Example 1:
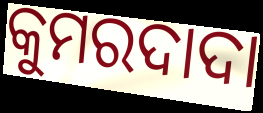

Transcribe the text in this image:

କୁମରଦାଦା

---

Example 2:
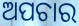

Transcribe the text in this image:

ଅପଚାର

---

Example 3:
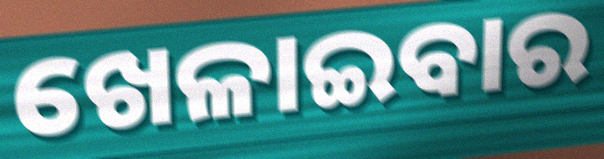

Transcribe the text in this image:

ଖେଳାଇବାର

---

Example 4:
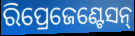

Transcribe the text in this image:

ରିପ୍ରେଜେଣ୍ଟେସନ୍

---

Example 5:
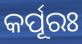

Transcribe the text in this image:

କର୍ପୂରଃ